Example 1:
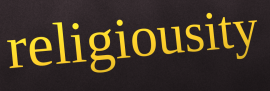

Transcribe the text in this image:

religiousity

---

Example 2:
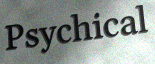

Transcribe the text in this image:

Psychical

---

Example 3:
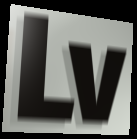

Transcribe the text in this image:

Lv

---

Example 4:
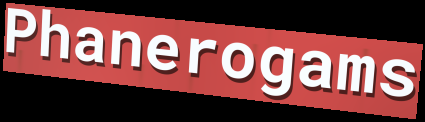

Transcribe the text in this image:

Phanerogams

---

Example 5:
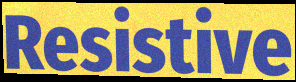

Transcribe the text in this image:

Resistive